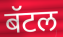
बॅटल